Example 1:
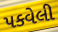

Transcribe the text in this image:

પકવેલી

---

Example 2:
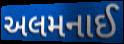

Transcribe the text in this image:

અલમનાઈ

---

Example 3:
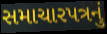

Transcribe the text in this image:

સમાચારપત્રનું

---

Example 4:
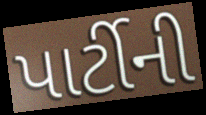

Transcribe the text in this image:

પાર્ટીની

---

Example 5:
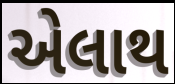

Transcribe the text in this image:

એલાથ